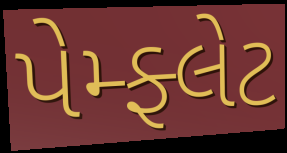
પેમ્ફ્લેટ